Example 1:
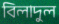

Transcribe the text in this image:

বিলাদুল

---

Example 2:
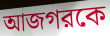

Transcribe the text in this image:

আজগরকে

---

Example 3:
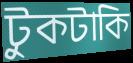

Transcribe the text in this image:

টুকটাকি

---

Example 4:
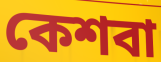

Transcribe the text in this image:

কেশবা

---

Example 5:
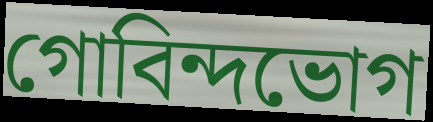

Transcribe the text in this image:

গোবিন্দভোগ